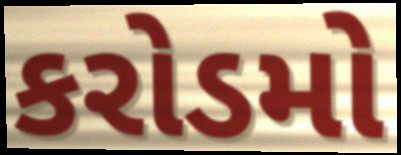
કરોડમો